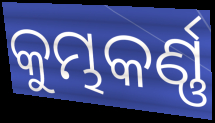
କୁମ୍ଭକର୍ଣ୍ଣ